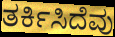
ತರ್ಕಿಸಿದೆವು